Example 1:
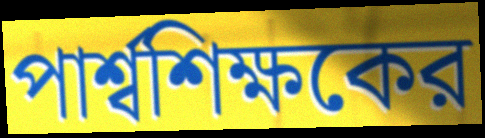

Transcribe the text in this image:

পার্শ্বশিক্ষকের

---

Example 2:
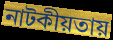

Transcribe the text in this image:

নাটকীয়তায়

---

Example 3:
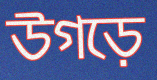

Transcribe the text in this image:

উগড়ে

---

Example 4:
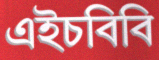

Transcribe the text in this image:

এইচবিবি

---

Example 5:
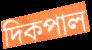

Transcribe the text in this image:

দিকপাল